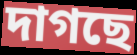
দাগছে